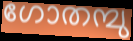
ഗോതമ്പു